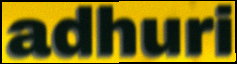
adhuri